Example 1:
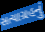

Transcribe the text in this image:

સત્યાગ્રહનું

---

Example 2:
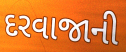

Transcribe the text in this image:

દરવાજાની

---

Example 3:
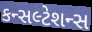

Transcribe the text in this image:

કન્સલ્ટેશન્સ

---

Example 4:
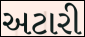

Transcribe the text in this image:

અટારી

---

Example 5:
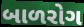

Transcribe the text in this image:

બાળરોગ